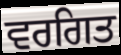
ਵਰਗਿਤ